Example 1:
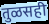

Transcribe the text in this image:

तुळसही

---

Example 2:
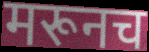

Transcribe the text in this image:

मरूनच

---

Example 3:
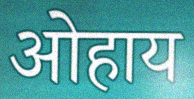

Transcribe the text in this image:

ओहाय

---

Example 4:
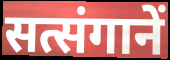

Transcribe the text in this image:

सत्संगानें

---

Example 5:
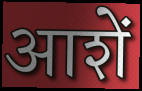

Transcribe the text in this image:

आशें